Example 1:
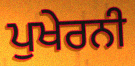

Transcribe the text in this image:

ਪੁਖੇਰਨੀ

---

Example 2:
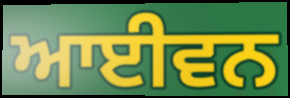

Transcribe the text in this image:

ਆਈਵਨ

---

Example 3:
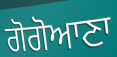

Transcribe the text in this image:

ਗੋਗੋਆਣਾ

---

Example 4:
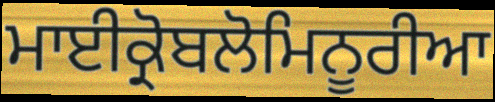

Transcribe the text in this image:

ਮਾਈਕ੍ਰੋਬਲੋਮਿਨੂਰੀਆ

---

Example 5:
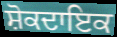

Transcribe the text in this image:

ਸ਼ੋਕਦਾਇਕ